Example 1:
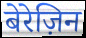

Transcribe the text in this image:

बेरेज़िन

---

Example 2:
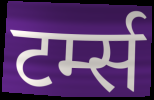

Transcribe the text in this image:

टर्म्स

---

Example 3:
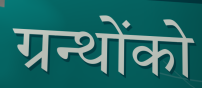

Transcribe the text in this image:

ग्रन्थोंको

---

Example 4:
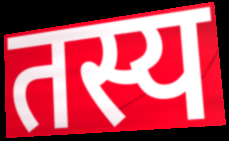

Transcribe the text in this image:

तस्य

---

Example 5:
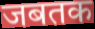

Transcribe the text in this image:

जबतक